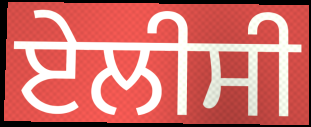
ਏਲੀਸੀ